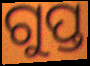
ଗୁପ୍ତ